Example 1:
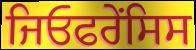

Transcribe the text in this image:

ਜਿਓਫਰੇਂਸਿਸ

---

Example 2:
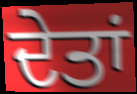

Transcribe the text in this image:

ਦੇਤਾਂ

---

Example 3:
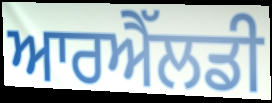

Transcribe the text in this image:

ਆਰਐੱਲਡੀ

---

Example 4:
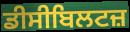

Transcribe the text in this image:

ਡੀਸੀਬਿਲਟਜ਼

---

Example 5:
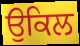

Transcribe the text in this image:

ਉਕਿਲ